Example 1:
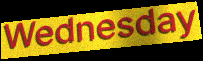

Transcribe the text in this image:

Wednesday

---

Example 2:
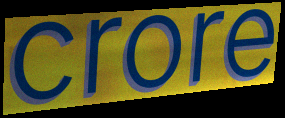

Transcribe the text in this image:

crore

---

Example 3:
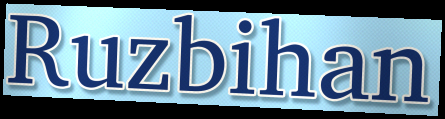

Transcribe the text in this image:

Ruzbihan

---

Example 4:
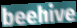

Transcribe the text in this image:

beehive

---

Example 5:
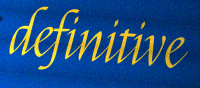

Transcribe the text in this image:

definitive